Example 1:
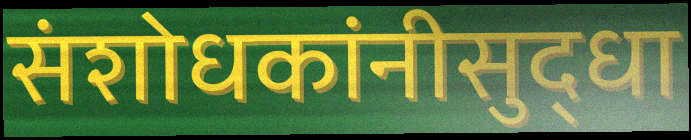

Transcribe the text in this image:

संशोधकांनीसुद्धा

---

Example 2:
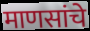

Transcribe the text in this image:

माणसांचे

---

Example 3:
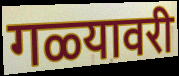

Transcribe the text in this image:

गळ्यावरी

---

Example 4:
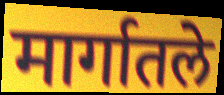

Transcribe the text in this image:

मार्गातले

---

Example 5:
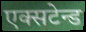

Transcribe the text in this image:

एक्सटेन्ड